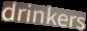
drinkers